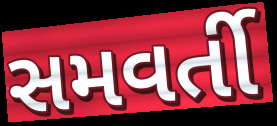
સમવર્તી